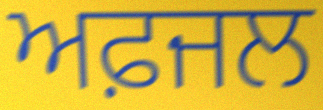
ਅਫ਼ਜਲ